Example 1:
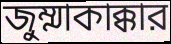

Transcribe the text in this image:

জুম্মাকাক্কার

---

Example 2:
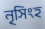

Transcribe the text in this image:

নৃসিংহ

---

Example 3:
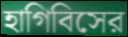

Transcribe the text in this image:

হাগিবিসের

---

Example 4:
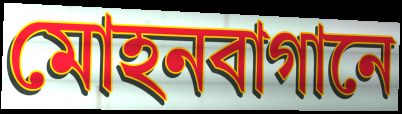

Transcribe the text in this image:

মোহনবাগানে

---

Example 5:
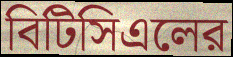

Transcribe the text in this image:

বিটিসিএলের